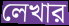
লেখার